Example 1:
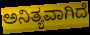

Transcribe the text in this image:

ಅನಿತ್ಯವಾಗಿದೆ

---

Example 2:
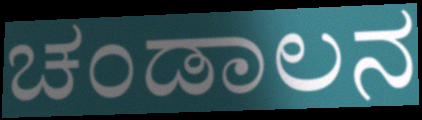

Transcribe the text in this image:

ಚಂಡಾಲನ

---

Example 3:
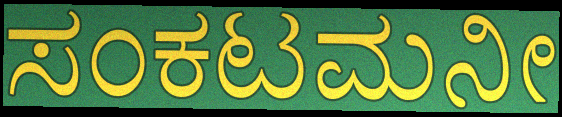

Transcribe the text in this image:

ಸಂಕಟಮನೀ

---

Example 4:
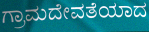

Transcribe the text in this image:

ಗ್ರಾಮದೇವತೆಯಾದ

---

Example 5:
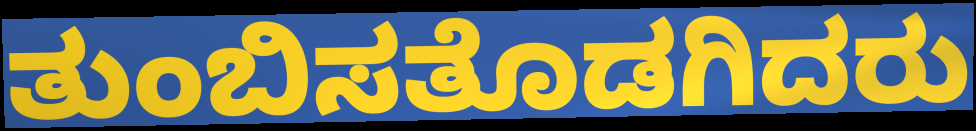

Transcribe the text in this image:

ತುಂಬಿಸತೊಡಗಿದರು